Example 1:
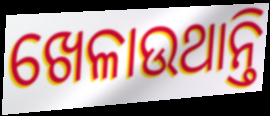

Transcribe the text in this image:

ଖେଳାଉଥାନ୍ତି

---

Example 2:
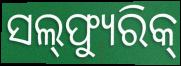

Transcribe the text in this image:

ସଲ୍‌ଫ୍ୟୁରିକ୍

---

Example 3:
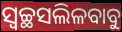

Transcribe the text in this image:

ସ୍ୱଚ୍ଛସଲିଳବାବୁ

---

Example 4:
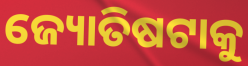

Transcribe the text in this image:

ଜ୍ୟୋତିଷଟାକୁ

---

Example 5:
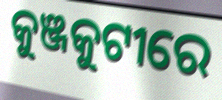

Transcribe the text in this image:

କୁଞ୍ଜକୁଟୀରେ